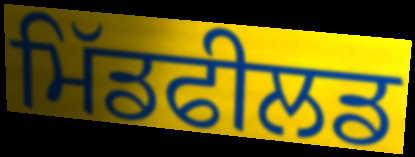
ਮਿੱਡਫੀਲਡ